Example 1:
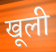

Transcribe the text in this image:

खूली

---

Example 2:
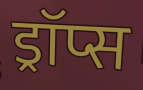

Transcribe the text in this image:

ड्रॉप्‍स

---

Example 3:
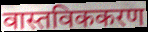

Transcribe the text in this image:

वास्तविककरण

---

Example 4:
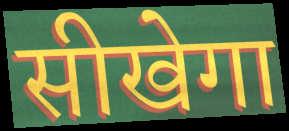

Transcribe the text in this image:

सीखेगा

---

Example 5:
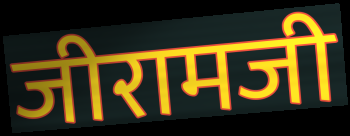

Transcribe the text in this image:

जीरामजी